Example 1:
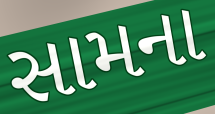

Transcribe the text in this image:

સામના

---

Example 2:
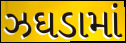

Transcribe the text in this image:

ઝઘડામાં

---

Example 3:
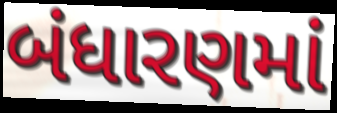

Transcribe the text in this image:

બંધારણમાં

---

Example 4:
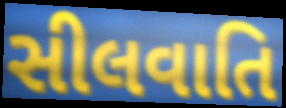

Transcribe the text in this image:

સીલવાતિ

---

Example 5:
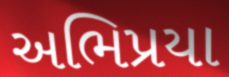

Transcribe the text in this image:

અભિપ્રયા